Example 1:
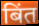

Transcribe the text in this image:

बिंत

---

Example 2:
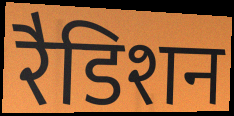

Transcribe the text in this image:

रैडिशन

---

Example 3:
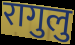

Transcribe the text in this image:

रागुलु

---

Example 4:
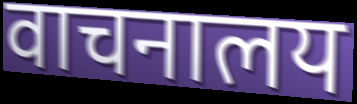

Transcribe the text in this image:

वाचनालय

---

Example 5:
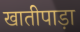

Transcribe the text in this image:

खातीपाड़ा